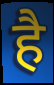
है